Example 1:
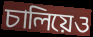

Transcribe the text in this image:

চালিয়েও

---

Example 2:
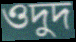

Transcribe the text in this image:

ওদুদ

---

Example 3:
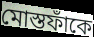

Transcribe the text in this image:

মোস্তফাঁকে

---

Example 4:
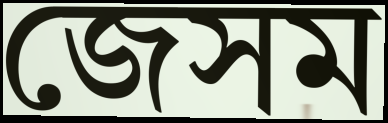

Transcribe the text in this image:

জেসম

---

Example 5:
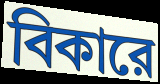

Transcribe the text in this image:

বিকারে